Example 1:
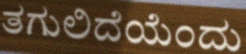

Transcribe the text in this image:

ತಗುಲಿದೆಯೆಂದು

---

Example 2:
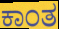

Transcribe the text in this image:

ಕಾಂತ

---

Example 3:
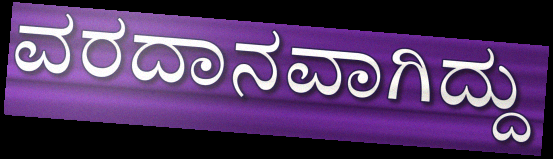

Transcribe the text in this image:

ವರದಾನವಾಗಿದ್ದು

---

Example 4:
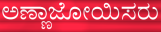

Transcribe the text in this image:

ಅಣ್ಣಾಜೋಯಿಸರು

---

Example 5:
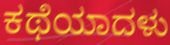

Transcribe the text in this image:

ಕಥೆಯಾದಳು